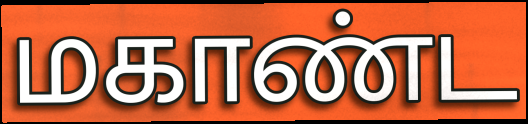
மகாண்ட